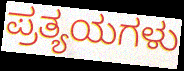
ಪ್ರತ್ಯಯಗಳು